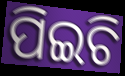
ପିଇଚି